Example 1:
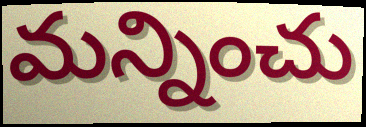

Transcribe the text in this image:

మన్నించు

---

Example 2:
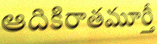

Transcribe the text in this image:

ఆదికిరాతమూర్తీ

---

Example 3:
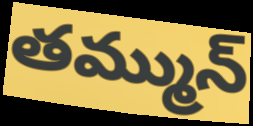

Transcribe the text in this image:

తమ్మున్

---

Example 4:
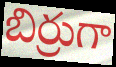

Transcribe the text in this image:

బిర్రుగా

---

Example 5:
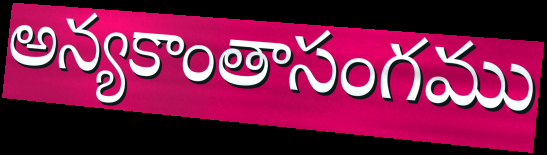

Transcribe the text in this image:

అన్యకాంతాసంగము